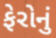
ફેરોનું